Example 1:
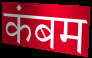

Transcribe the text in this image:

कंबम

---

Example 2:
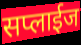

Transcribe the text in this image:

सप्लाईज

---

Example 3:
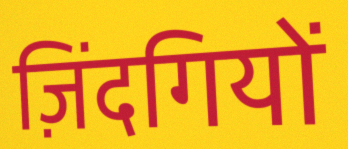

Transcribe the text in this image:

ज़िंदगियों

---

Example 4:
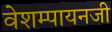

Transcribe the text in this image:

वेशम्पायनजी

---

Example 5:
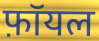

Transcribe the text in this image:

फ़ॉयल